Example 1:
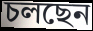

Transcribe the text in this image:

চলছেন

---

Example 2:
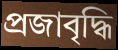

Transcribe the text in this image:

প্রজাবৃদ্ধি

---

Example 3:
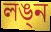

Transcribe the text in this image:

লঙ্ন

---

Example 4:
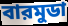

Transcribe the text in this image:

বারমুডা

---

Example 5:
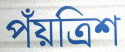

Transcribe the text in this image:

পঁয়ত্রিশ